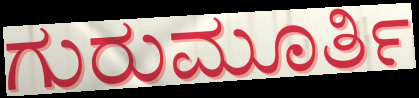
ಗುರುಮೂರ್ತಿ